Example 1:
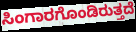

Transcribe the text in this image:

ಸಿಂಗಾರಗೊಂಡಿರುತ್ತದೆ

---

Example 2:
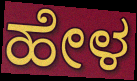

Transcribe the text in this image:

ಹೇಳ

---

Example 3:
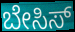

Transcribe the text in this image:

ಬೇಸಿಸ್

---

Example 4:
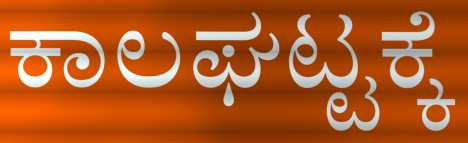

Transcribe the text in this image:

ಕಾಲಘಟ್ಟಕ್ಕೆ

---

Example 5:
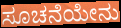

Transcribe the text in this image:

ಸೂಚನೆಯೇನು